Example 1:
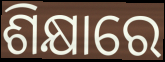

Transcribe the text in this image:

ଶିକ୍ଷାରେ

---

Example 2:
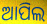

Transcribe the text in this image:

ଆପିଲ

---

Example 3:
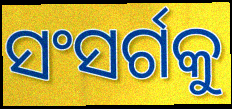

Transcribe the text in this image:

ସଂସର୍ଗକୁ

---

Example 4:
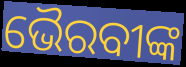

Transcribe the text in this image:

ଭୈରବୀଙ୍କ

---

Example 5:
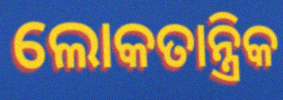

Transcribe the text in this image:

ଲୋକତାନ୍ତ୍ରିକ